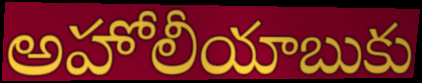
అహోలీయాబుకు